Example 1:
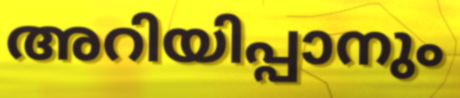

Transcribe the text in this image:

അറിയിപ്പാനും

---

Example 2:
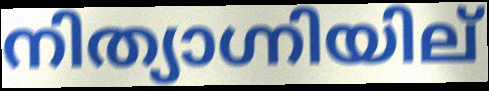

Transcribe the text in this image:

നിത്യാഗ്നിയില്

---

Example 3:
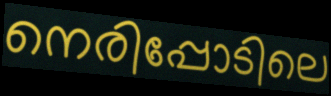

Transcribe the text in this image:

നെരിപ്പോടിലെ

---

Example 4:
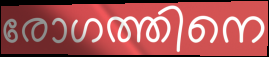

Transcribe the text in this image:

രോഗത്തിനെ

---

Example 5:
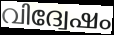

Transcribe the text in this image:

വിദ്വേഷം